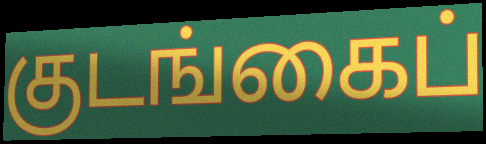
குடங்கைப்